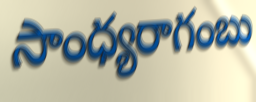
సాంధ్యరాగంబు